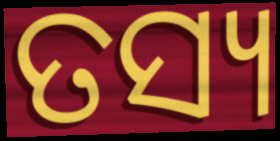
ତସ୍ୟ